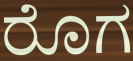
ರೊಗ